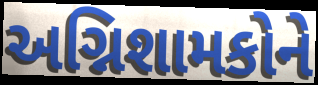
અગ્નિશામકોને